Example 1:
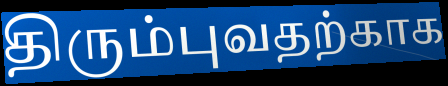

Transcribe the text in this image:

திரும்புவதற்காக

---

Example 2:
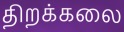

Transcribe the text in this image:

திறக்கலை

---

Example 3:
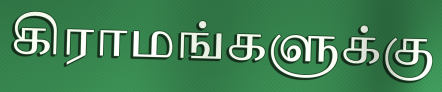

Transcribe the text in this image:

கிராமங்களுக்கு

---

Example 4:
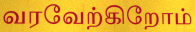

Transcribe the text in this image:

வரவேற்கிறோம்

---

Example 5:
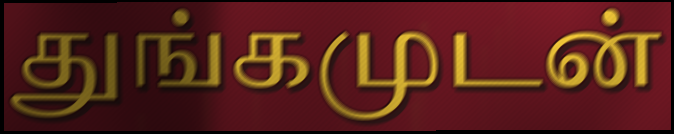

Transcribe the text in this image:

துங்கமுடன்